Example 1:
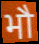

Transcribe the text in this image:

भौ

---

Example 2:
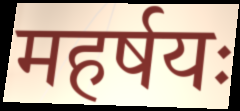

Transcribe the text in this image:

महर्षयः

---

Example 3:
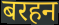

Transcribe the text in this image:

बरहन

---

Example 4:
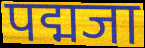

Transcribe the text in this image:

पद्मजा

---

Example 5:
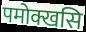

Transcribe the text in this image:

पमोक्खसि